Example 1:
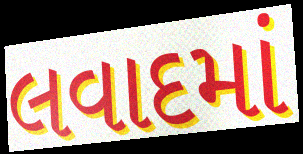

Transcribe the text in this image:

લવાદમાં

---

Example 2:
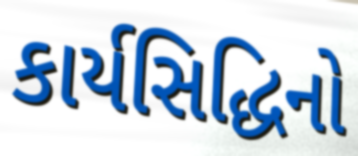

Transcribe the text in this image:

કાર્યસિદ્ધિનો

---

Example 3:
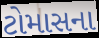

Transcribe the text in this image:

ટોમાસના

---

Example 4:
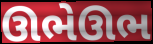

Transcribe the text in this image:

ઊભેઊભ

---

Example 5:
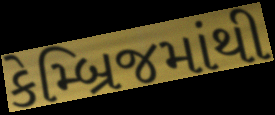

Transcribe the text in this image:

કેમ્બ્રિજમાંથી